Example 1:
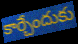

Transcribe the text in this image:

కార్చేందుకు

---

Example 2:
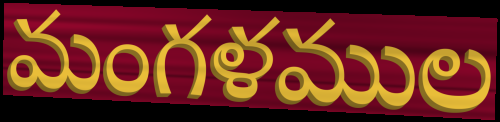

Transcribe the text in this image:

మంగళముల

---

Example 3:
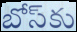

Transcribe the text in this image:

బోస్‌కు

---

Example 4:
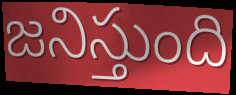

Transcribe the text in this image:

జనిస్తుంది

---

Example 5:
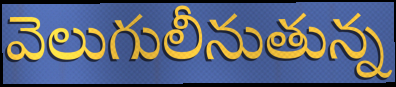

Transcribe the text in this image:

వెలుగులీనుతున్న